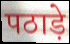
पठाड़े